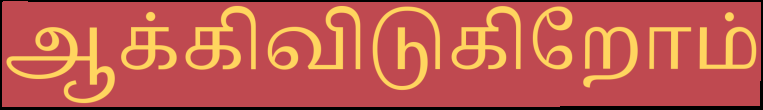
ஆக்கிவிடுகிறோம்